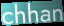
chhan